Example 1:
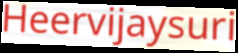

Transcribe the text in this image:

Heervijaysuri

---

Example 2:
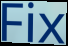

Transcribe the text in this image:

Fix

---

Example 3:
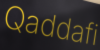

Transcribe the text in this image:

Qaddafi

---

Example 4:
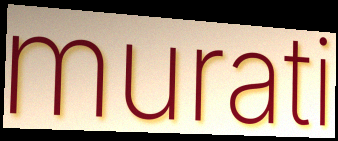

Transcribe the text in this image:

murati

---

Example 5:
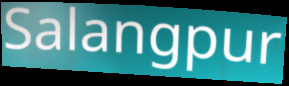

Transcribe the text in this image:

Salangpur